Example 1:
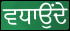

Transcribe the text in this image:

ਵਧਾਉਂਦੇ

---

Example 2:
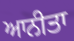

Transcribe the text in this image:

ਆਨੀਤਾ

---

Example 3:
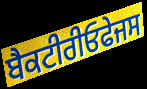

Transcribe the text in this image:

ਬੈਕਟੀਰੀਓਫੇਜਸ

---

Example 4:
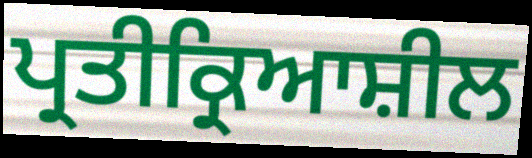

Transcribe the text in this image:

ਪ੍ਰਤੀਕ੍ਰਿਆਸ਼ੀਲ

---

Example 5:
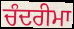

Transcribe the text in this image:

ਚੰਦਰੀਮਾ